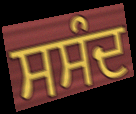
ਸਸੰਦ